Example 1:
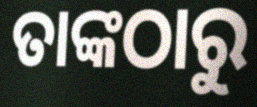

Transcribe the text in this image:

ତାଙ୍କଠାରୁ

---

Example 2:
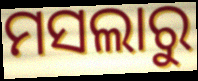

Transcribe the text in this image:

ମସଲାରୁ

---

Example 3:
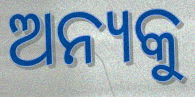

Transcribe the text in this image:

ଅନ୍ୟକୁ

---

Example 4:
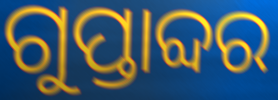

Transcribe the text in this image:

ଗୁପ୍ତାବ୍ଦର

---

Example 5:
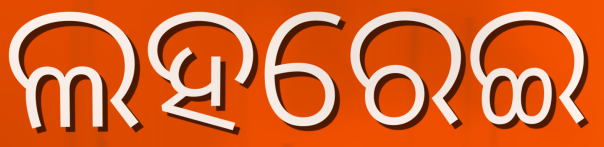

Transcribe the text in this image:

ଲହରେଇ